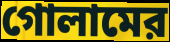
গোলামের